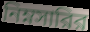
নিম্নসারির